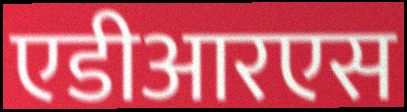
एडीआरएस